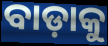
ବାଡ଼ାକୁ